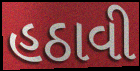
હઠાવી